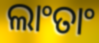
ଲାଂତାଂ